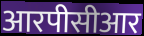
आरपीसीआर